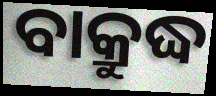
ବାକ୍ରୁଦ୍ଧ